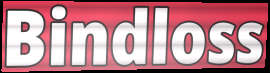
Bindloss